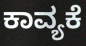
ಕಾವ್ಯಕೆ